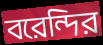
বরেন্দির